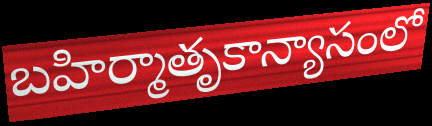
బహిర్మాతృకాన్యాసంలో